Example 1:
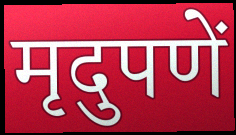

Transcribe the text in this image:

मृदुपणें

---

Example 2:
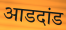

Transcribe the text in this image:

आडदांड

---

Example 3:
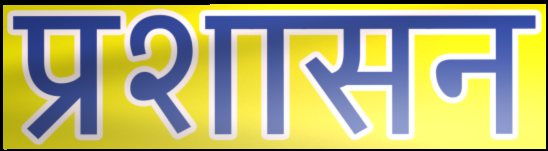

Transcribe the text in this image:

प्रशासन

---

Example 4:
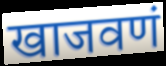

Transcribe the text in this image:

खाजवणं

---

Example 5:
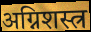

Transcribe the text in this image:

अग्निशस्त्र